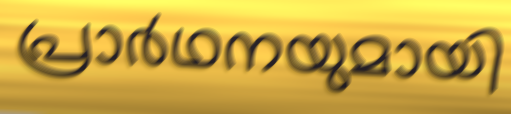
പ്രാർഥനയുമായി